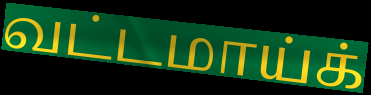
வட்டமாய்க்